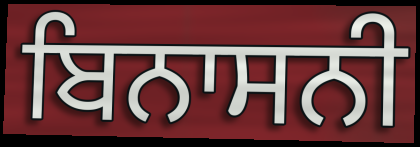
ਬਿਨਾਸਨੀ